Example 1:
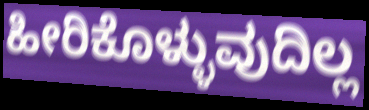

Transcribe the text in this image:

ಹೀರಿಕೊಳ್ಳುವುದಿಲ್ಲ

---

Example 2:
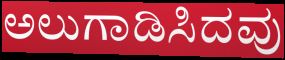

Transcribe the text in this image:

ಅಲುಗಾಡಿಸಿದವು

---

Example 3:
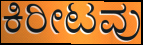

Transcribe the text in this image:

ಕಿರೀಟವು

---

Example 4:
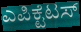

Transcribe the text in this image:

ಎಪಿಕ್ಟೆಟಸ್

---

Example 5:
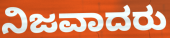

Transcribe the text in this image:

ನಿಜವಾದರು